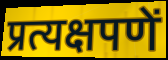
प्रत्यक्षपणें